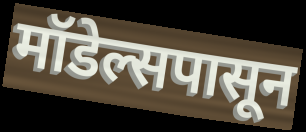
मॉडेल्सपासून